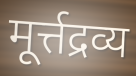
मूर्त्तद्रव्य